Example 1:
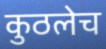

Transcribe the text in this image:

कुठलेच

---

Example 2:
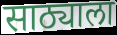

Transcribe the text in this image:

साठ्याला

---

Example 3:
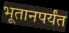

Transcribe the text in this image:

भूतानपर्यंत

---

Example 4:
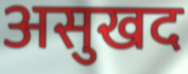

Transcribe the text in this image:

असुखद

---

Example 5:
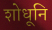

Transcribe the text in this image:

शोधूनि